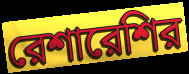
রেশারেশির